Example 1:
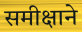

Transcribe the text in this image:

समीक्षाने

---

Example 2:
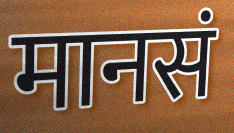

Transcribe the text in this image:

मानसं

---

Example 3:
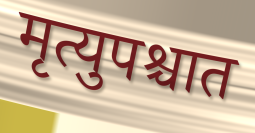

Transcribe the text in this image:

मृत्युपश्चात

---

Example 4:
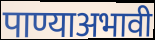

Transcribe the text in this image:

पाण्याअभावी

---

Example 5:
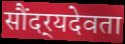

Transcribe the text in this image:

सौंदर्यदेवता